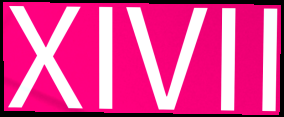
XIVII